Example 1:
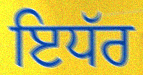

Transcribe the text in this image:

ਇਧੱਰ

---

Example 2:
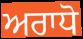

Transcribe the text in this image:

ਅਰਾਧੋ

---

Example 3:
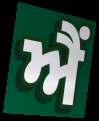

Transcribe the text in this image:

ਐਂ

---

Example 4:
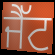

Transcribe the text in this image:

ਜੈੱਟ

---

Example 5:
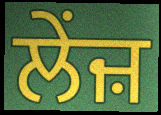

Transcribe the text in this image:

ਲੇਂਜ਼